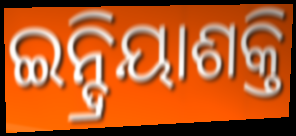
ଇନ୍ଦ୍ରିୟାଶକ୍ତି